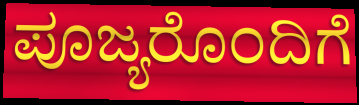
ಪೂಜ್ಯರೊಂದಿಗೆ